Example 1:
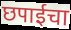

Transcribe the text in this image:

छपाईचा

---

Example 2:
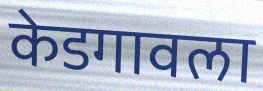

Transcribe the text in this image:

केडगावला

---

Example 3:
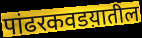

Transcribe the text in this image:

पांढरकवडय़ातील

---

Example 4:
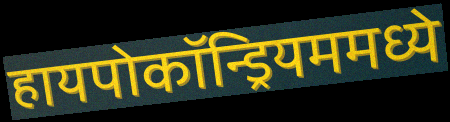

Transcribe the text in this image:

हायपोकॉन्ड्रियममध्ये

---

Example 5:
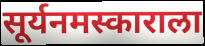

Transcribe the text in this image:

सूर्यनमस्काराला